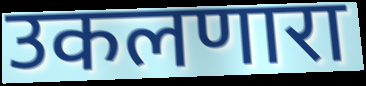
उकलणारा